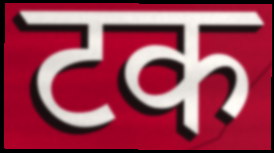
टक